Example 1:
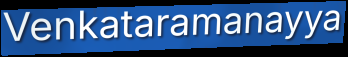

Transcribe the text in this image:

Venkataramanayya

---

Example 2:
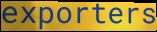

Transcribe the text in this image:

exporters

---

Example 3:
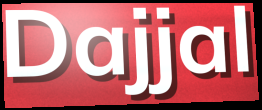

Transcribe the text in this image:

Dajjal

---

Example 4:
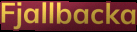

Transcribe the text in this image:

Fjallbacka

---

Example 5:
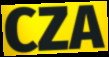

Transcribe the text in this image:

CZA